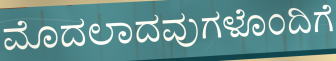
ಮೊದಲಾದವುಗಳೊಂದಿಗೆ